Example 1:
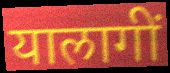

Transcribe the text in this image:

यालागीं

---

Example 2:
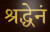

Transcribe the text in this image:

श्रद्धेनं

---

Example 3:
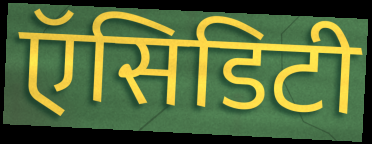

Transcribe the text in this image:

ऍसिडिटी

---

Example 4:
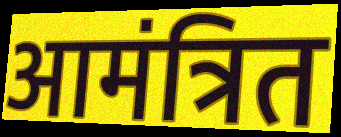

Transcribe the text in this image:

आमंत्रित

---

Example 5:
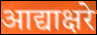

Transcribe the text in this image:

आद्याक्षरे